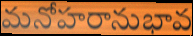
మనోహరానుభావ